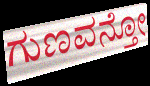
ಗುಣವನ್ತೋ